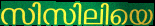
സിസിലിയെ